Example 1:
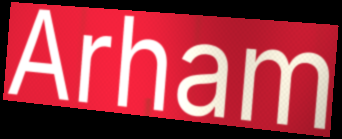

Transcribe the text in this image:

Arham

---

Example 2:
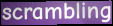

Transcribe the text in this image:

scrambling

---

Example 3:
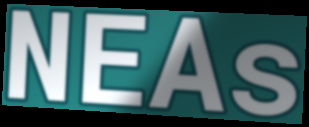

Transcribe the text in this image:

NEAs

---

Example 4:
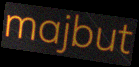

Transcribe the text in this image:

majbut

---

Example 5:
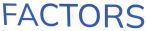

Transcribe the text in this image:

FACTORS